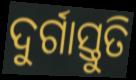
ଦୁର୍ଗାସ୍ତୁତି